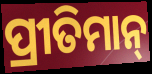
ପ୍ରୀତିମାନ୍